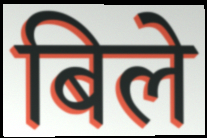
बिले